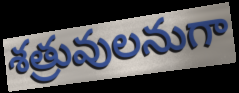
శత్రువులనుగా